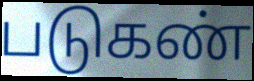
படுகண்